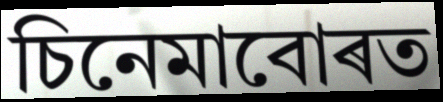
চিনেমাবোৰত